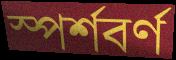
স্পৰ্শবৰ্ণ